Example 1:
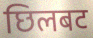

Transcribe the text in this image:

छिलबट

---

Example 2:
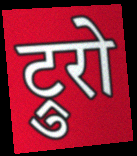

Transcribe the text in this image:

ट्रुरो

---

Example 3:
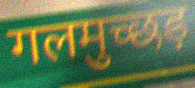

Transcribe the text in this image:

गलमुच्छड़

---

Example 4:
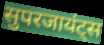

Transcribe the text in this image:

सुपरजायंट्स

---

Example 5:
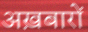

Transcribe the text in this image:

अख़बारों